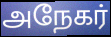
அநேகர்